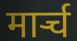
मार्र्च